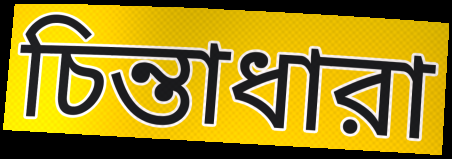
চিন্তাধারা